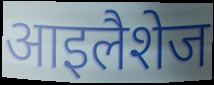
आइलैशेज